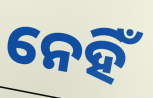
ନେହିଁ